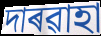
দাৰৱাহা